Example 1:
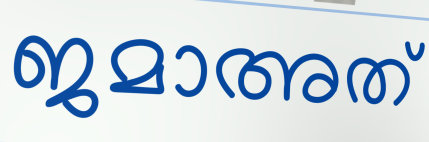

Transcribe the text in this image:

ജമാഅത്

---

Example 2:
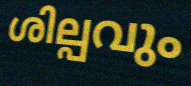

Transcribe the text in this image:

ശില്പവും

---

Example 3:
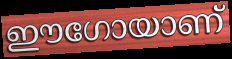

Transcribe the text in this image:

ഈഗോയാണ്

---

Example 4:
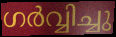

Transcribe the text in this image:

ഗർവ്വിച്ചു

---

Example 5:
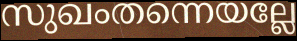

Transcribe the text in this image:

സുഖംതന്നെയല്ലേ